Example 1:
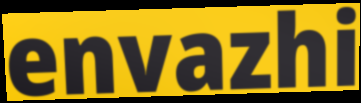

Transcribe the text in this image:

envazhi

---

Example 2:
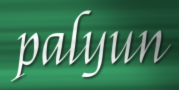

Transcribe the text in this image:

palyun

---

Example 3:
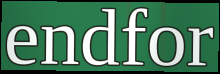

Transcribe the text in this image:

endfor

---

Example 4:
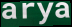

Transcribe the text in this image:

arya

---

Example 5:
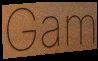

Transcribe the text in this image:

Gam